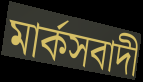
মার্কসবাদী